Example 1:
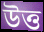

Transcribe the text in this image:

উত্ত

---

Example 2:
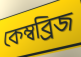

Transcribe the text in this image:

কেম্বব্ৰিজ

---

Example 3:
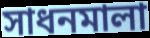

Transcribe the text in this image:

সাধনমালা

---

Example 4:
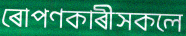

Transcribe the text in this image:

ৰোপণকাৰীসকলে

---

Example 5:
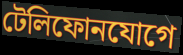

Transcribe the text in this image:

টেলিফোনযোগে